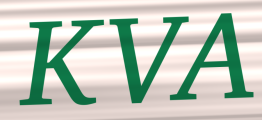
KVA